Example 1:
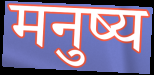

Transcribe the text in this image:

मनुष्‍य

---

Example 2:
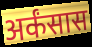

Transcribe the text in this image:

अर्कंसास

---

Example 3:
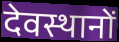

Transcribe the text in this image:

देवस्थानों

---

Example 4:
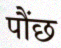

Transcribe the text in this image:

पौंछ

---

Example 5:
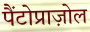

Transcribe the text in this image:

पैंटोप्राज़ोल